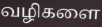
வழிகளை